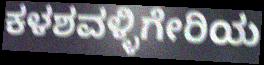
ಕಳಶವಳ್ಳಿಗೇರಿಯ